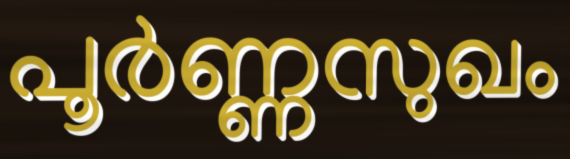
പൂർണ്ണസുഖം